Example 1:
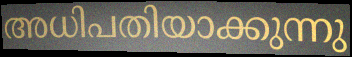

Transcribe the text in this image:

അധിപതിയാക്കുന്നു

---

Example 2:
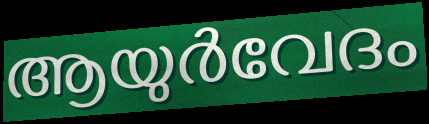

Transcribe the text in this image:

ആയുർവേദം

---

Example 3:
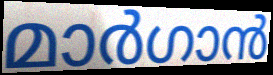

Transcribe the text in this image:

മാർഗാൻ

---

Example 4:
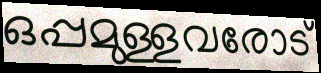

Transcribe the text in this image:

ഒപ്പമുള്ളവരോട്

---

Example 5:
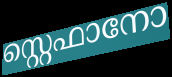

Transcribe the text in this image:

സ്റ്റെഫാനോ